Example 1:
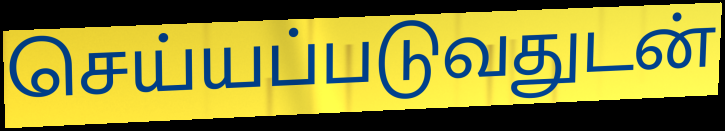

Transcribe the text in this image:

செய்யப்படுவதுடன்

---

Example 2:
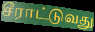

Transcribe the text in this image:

சீராட்டுவது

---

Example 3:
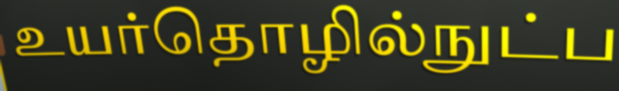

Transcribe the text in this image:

உயர்தொழில்நுட்ப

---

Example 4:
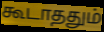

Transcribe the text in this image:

கூடாததும்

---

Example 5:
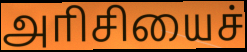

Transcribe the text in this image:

அரிசியைச்